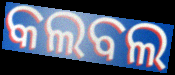
କଲବଲ